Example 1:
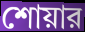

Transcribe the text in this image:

শোয়ার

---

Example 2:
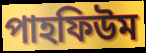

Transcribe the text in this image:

পাহফিউম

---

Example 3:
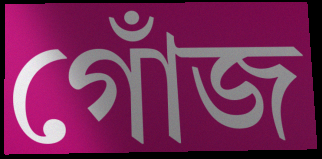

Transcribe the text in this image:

গোঁজ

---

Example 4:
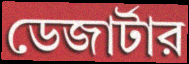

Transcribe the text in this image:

ডেজার্টার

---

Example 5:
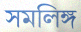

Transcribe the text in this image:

সমলিঙ্গ